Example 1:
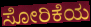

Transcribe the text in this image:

ಸೋರಿಕೆಯ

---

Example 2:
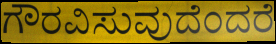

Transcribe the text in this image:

ಗೌರವಿಸುವುದೆಂದರೆ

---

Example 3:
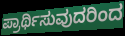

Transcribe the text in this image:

ಪ್ರಾರ್ಥಿಸುವುದರಿಂದ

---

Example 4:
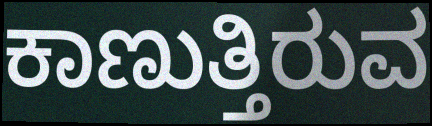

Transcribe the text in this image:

ಕಾಣುತ್ತಿರುವ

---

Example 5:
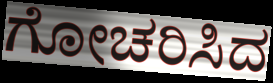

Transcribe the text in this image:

ಗೋಚರಿಸಿದ